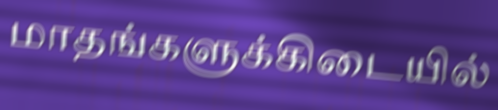
மாதங்களுக்கிடையில்